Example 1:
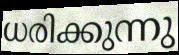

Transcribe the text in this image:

ധരിക്കുന്നു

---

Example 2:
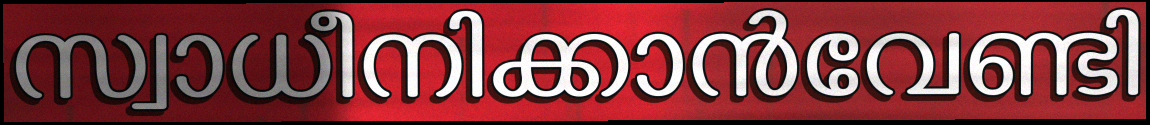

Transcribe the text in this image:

സ്വാധീനിക്കാൻവേണ്ടി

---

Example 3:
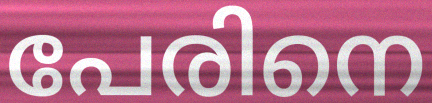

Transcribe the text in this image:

പേരിനെ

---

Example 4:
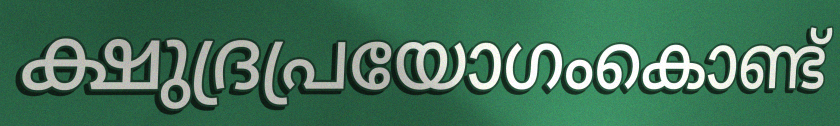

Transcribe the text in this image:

ക്ഷുദ്രപ്രയോഗംകൊണ്ട്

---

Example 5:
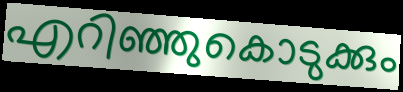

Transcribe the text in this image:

എറിഞ്ഞുകൊടുക്കും